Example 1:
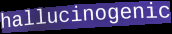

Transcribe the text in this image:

hallucinogenic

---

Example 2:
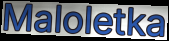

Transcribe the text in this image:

Maloletka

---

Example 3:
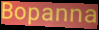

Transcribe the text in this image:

Bopanna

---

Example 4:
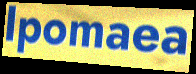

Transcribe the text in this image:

Ipomaea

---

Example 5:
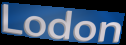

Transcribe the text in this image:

Lodon